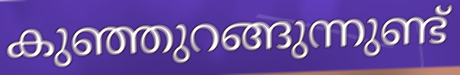
കുഞ്ഞുറങ്ങുന്നുണ്ട്